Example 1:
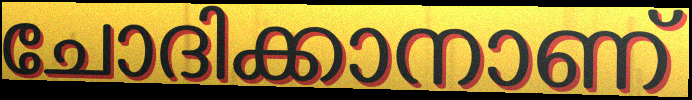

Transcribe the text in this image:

ചോദിക്കാനാണ്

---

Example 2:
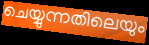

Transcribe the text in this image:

ചെയ്യുന്നതിലെയും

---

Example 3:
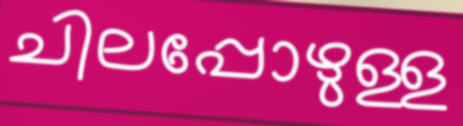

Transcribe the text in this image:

ചിലപ്പോഴുള്ള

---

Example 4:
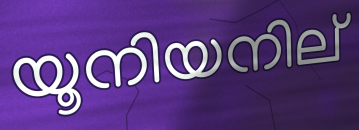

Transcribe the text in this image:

യൂനിയനില്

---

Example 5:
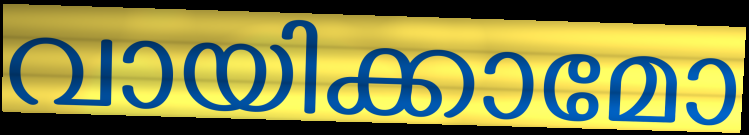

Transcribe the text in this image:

വായിക്കാമോ